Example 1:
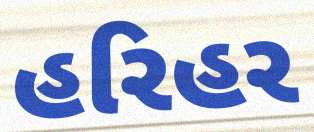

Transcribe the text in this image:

હરિહર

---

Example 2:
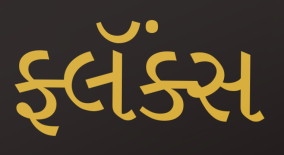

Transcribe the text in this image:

ફ્લૅંક્સ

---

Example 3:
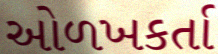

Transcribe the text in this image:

ઓળખકર્તા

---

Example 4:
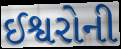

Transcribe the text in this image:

ઈશ્વરોની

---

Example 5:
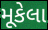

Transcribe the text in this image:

મૂકેલા